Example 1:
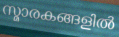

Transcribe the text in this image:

സ്മാരകങ്ങളിൽ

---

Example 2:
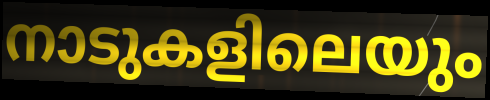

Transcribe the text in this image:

നാടുകളിലെയും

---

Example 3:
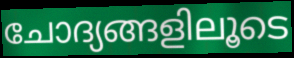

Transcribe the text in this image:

ചോദ്യങ്ങളിലൂടെ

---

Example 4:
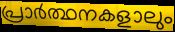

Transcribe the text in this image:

പ്രാർത്ഥനകളാലും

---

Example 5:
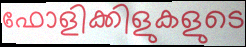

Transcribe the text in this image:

ഫോളിക്കിളുകളുടെ